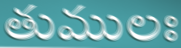
తుములః